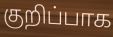
குறிப்பாக